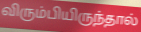
விரும்பியிருந்தால்